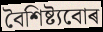
বৈশিষ্ট্যবোৰ